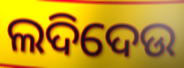
ଲଦିଦେଉ